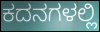
ಕದನಗಳಲ್ಲಿ